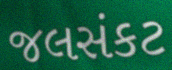
જલસંકટ